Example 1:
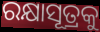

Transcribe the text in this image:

ରକ୍ଷାସୂତ୍ରକୁ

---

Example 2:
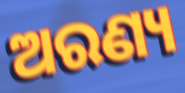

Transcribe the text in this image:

ଅରଣ୍ୟ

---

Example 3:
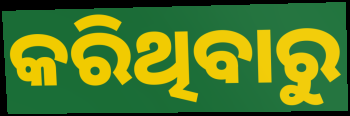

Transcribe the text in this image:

କରିଥିବାରୁ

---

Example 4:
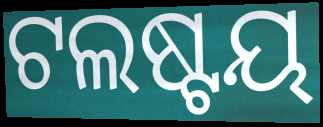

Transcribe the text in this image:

ଟଲଷ୍ଟୟ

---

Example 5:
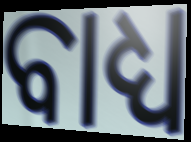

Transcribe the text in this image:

ବାଧ୍ୟ